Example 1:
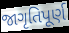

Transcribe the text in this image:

જાગૃતિપૂર્ણ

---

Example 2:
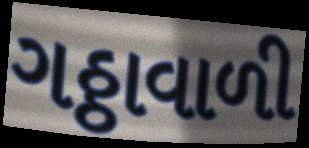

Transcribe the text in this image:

ગઠ્ઠાવાળી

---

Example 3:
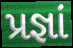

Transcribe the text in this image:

પ્રજ્ઞાં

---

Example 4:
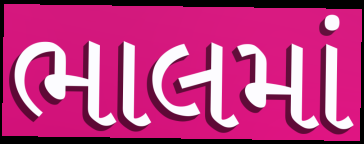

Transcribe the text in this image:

ભાલમાં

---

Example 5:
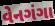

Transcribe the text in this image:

વેનગંગા